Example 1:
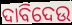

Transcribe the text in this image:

ଦାବିଦେଉ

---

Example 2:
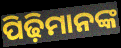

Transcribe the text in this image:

ପିଢ଼ିମାନଙ୍କ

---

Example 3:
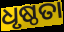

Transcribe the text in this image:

ଧୃଷ୍ଠତା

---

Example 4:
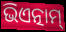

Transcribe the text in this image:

ଭିଏତ୍ନାମ୍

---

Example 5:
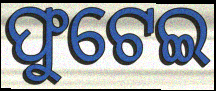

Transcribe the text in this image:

ଫୁଟେଇ